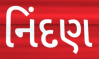
નિંદણ